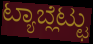
ಟ್ಯಾಬ್ಲೆಟ್ಟು